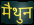
मैथुन